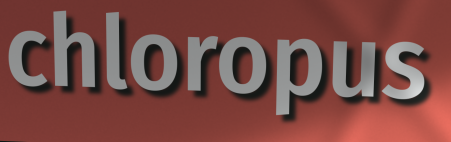
chloropus